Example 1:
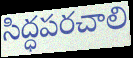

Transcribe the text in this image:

సిద్ధపరచాలి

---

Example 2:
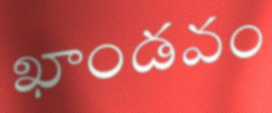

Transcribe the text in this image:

ఖాండవం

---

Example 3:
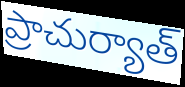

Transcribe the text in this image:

ప్రాచుర్యాత్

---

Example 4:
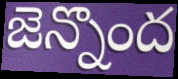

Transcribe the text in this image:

జెన్నొంద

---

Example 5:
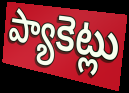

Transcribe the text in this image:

ప్యాకెట్లు